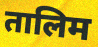
तालिम